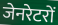
जेनरेटरों